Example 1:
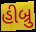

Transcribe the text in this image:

હીબ્રુ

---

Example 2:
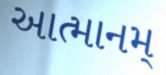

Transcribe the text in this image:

આત્માનમ્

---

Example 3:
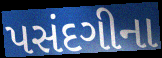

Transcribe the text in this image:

પસંદગીના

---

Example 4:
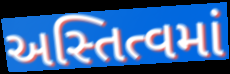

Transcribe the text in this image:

અસ્તિત્વમાં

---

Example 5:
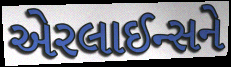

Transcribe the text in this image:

એરલાઈન્સને